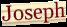
Joseph